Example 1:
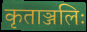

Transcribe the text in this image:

कृताञ्जलिः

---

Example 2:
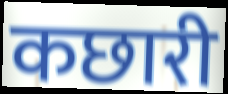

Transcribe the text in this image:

कछारी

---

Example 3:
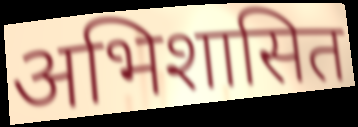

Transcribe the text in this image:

अभिशासित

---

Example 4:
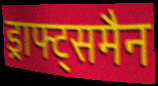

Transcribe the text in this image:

ड्राफ्ट्समैन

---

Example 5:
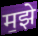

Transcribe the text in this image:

म॒झे